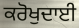
ਕਰੋਖੁਦਾਈ